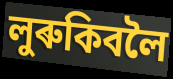
লুৰুকিবলৈ